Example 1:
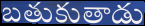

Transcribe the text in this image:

బతుకుతాడు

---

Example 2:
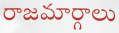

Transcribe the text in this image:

రాజమార్గాలు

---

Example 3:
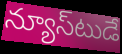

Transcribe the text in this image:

న్యూస్‌టుడే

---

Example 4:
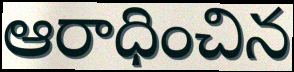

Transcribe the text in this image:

ఆరాధించిన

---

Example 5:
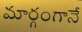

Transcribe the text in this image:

మార్గంగానే